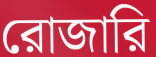
রোজারি